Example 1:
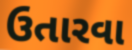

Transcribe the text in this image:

ઉતારવા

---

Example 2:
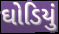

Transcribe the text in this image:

ઘોડિયું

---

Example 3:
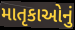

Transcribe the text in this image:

માતૃકાઓનું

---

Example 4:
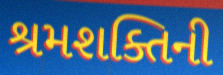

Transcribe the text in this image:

શ્રમશક્તિની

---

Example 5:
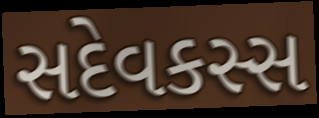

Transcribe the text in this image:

સદેવકસ્સ